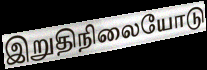
இறுதிநிலையோடு